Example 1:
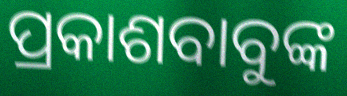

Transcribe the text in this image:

ପ୍ରକାଶବାବୁଙ୍କ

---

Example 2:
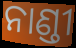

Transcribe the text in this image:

ନାଣ୍ଡୀ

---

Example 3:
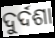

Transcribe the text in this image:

ଦୁର୍ଦଶା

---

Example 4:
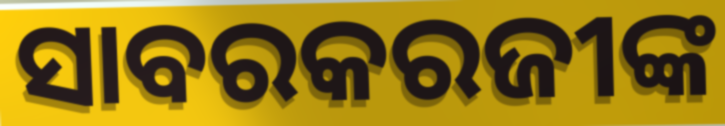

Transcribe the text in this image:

ସାବରକରଜୀଙ୍କ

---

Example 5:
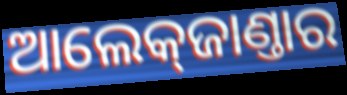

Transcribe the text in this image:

ଆଲେକ୍‌ଜାଣ୍ତାର